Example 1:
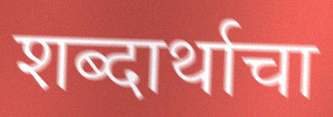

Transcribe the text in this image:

शब्दार्थाचा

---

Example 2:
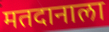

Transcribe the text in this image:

मतदानाला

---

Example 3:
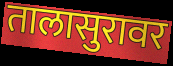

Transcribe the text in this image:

तालासुरावर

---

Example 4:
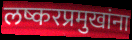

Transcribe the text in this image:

लष्करप्रमुखांना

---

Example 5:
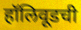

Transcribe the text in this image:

हॉलिवूडची